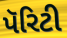
પૅરિટી